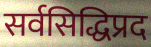
सर्वसिद्धिप्रद